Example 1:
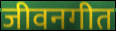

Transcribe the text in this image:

जीवनगीत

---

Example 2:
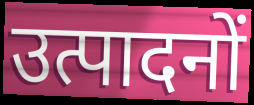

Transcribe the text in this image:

उत्पादनों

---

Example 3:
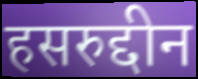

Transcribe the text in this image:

हसरुद्दीन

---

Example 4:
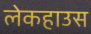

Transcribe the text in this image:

लेकहाउस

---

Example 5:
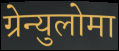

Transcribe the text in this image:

ग्रेन्युलोमा